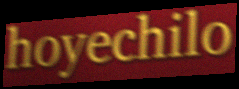
hoyechilo